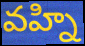
వహ్ని